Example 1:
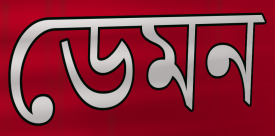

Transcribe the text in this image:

ডেমন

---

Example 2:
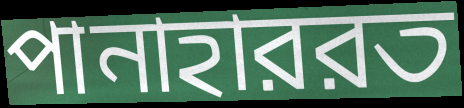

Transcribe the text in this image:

পানাহাররত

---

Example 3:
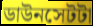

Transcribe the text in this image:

ডাউনসেটটা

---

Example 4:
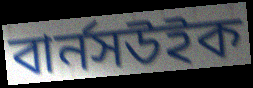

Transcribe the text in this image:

বার্নসউইক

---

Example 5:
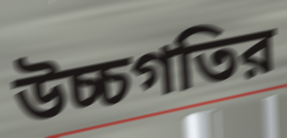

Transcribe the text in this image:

উচ্চগতির